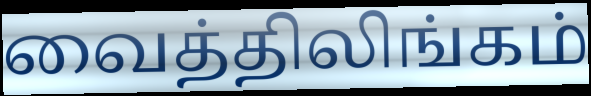
வைத்திலிங்கம்